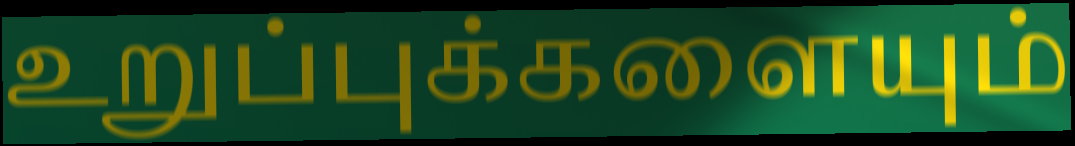
உறுப்புக்களையும்